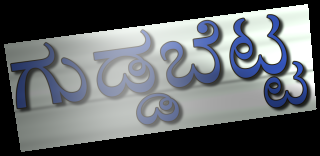
ಗುಡ್ಡಬೆಟ್ಟ